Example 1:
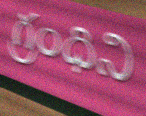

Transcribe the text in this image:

గ్రంధిని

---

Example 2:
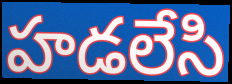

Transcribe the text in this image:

హడలేసి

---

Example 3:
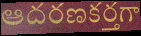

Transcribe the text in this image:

ఆదరణకర్తగా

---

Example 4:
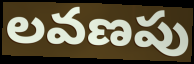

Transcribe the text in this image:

లవణపు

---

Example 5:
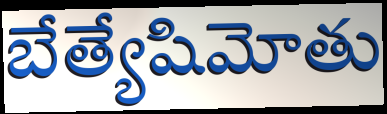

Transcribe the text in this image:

బేత్యేషిమోతు